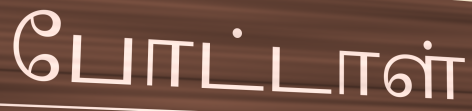
போட்டாள்